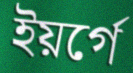
ইয়র্গে